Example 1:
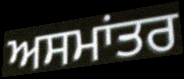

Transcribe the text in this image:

ਅਸਮਾਂਤਰ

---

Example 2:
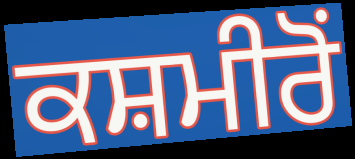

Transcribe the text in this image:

ਕਸ਼ਮੀਰੋਂ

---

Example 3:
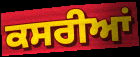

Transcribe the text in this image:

ਕਸਰੀਆਂ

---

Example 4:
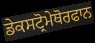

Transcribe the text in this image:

ਡੇਕਸਟ੍ਰੋਮੇਥੋਰਫਾਨ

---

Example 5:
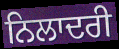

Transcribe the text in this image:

ਨਿਲਾਦਰੀ